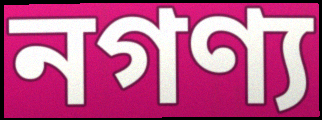
নগণ্য